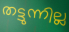
തട്ടുന്നില്ല